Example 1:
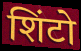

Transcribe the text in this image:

शिंटो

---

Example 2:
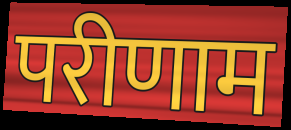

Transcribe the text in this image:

परीणाम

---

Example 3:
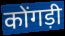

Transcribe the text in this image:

कोंगड़ी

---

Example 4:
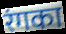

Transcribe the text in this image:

रंगका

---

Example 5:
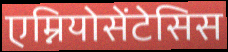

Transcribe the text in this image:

एम्नियोसेंटेसिस